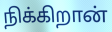
நிக்கிறான்